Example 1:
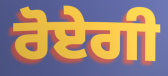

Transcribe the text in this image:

ਰੋਏਗੀ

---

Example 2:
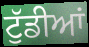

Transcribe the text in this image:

ਟੁੱਡੀਆਂ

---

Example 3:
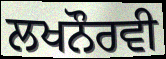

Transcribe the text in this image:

ਲਖਨੌਰਵੀ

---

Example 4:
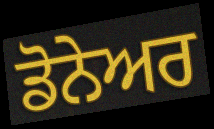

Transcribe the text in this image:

ਡੋਨੇਅਰ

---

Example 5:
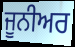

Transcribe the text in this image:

ਜੂਨੀਅਰ